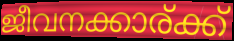
ജീവനക്കാര്ക്ക്